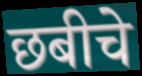
छबीचे